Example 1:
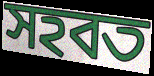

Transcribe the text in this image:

সহবত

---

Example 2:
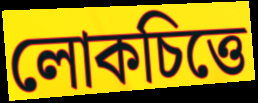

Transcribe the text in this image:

লোকচিত্তে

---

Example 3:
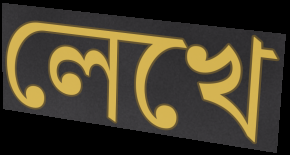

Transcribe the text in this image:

লেখে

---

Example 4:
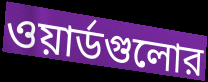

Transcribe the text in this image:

ওয়ার্ডগুলোর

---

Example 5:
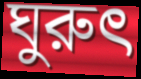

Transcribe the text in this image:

ঘুরুৎ